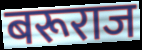
बरूराज